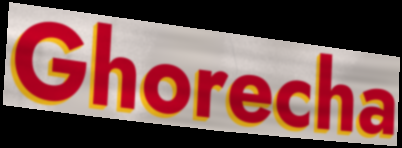
Ghorecha